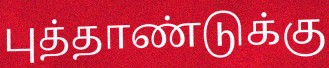
புத்தாண்டுக்கு